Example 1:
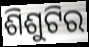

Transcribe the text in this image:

ଶିଶୁଟିର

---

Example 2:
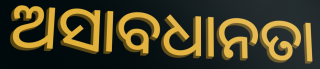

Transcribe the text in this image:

ଅସାବଧାନତା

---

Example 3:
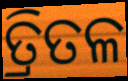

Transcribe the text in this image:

ତ୍ରିତଳ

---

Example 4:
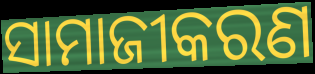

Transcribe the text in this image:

ସାମାଜୀକରଣ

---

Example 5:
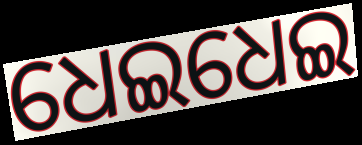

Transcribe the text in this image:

ଧେଇଧେଇ